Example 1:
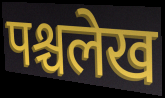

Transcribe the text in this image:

पश्चलेख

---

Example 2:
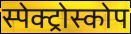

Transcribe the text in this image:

स्पेक्ट्रोस्कोप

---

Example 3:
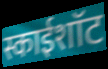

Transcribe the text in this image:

स्काईशॉट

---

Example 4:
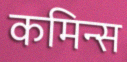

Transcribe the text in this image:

कमिन्स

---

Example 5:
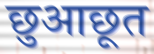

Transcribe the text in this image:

छुआछूत